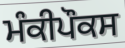
ਮੰਕੀਪੌਕਸ